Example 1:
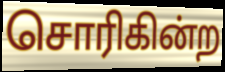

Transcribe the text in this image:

சொரிகின்ற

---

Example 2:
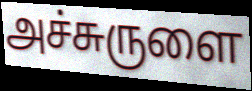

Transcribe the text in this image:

அச்சுருளை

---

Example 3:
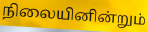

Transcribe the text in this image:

நிலையினின்றும்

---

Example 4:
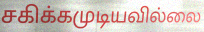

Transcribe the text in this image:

சகிக்கமுடியவில்லை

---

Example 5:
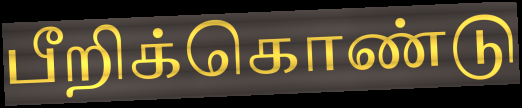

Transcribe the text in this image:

பீறிக்கொண்டு